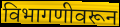
विभागणीवरून